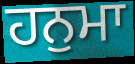
ਹਨੁਮਾ